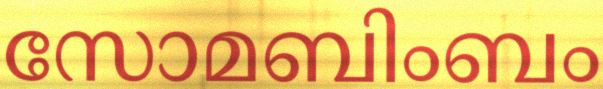
സോമബിംബം